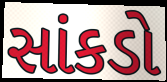
સાંકડો